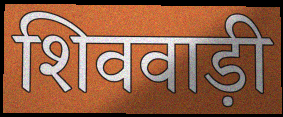
शिववाड़ी